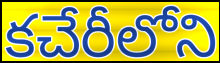
కచేరీలోని